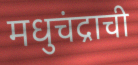
मधुचंद्राची